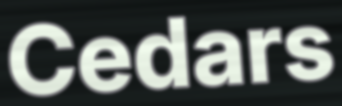
Cedars